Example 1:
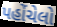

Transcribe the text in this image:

પહોંચેલો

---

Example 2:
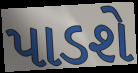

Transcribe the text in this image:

પાડશે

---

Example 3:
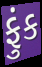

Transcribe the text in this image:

ફુંક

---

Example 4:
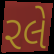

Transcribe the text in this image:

રલે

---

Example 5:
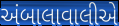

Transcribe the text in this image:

અંબાલાવાલીએ